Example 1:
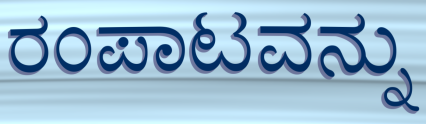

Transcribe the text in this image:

ರಂಪಾಟವನ್ನು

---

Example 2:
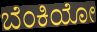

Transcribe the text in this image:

ಬೆಂಕಿಯೋ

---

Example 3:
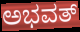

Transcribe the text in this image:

ಅಭವತ್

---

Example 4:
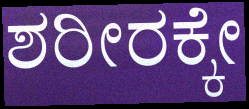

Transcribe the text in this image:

ಶರೀರಕ್ಕೇ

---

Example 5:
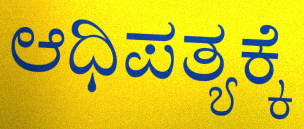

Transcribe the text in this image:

ಆಧಿಪತ್ಯಕ್ಕೆ